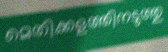
മെതിക്കളത്തിനടുത്തു